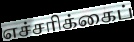
எச்சரிக்கைப்